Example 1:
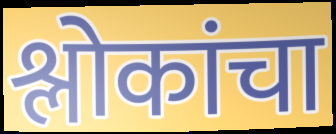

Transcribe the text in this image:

श्लोकांचा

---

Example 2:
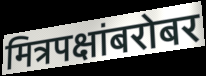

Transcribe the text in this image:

मित्रपक्षांबरोबर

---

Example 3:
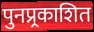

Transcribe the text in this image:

पुनप्र्रकाशित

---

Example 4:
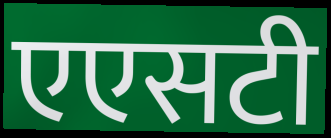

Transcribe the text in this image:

एएसटी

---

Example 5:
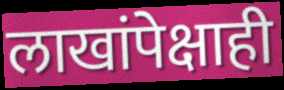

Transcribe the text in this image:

लाखांपेक्षाही